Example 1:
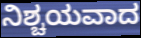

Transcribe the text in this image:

ನಿಶ್ಚಯವಾದ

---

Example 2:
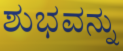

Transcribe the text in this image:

ಶುಭವನ್ನು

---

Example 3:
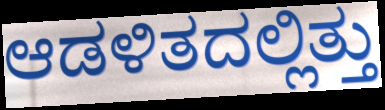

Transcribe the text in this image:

ಆಡಳಿತದಲ್ಲಿತ್ತು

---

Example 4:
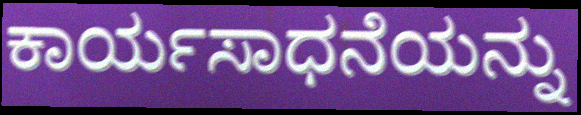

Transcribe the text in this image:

ಕಾರ್ಯಸಾಧನೆಯನ್ನು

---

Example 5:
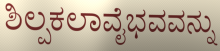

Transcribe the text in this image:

ಶಿಲ್ಪಕಲಾವೈಭವವನ್ನು